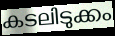
കടലിടുക്കം